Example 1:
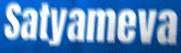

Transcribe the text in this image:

Satyameva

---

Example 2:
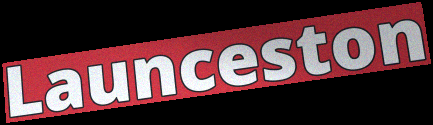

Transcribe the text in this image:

Launceston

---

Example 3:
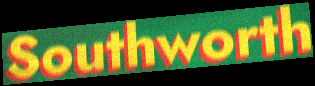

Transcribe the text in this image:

Southworth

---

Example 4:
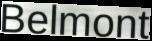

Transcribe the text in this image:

Belmont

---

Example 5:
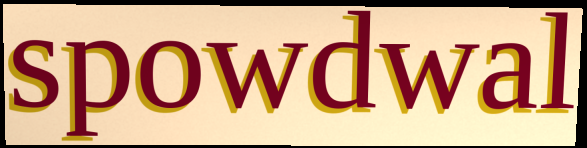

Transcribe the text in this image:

spowdwal